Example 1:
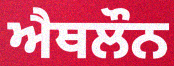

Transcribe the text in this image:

ਐਥਲੌਨ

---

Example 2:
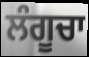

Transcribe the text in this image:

ਲੰਗੂਚਾ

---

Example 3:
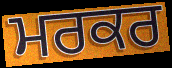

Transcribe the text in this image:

ਮਰਕਰ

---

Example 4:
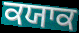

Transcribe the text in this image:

ਕਯਾਕ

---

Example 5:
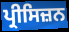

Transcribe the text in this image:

ਪ੍ਰੀਸਿਜ਼ਨ